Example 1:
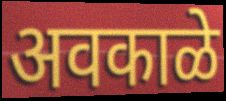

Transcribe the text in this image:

अवकाळे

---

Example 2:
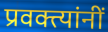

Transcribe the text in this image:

प्रवक्त्यांनीं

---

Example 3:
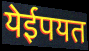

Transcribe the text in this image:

येईपयत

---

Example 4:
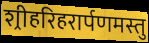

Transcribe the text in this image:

श्रीहरिहरार्पणमस्तु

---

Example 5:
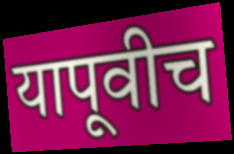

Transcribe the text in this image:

यापूवीच